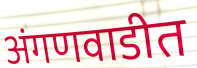
अंगणवाडीत